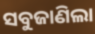
ସବୁଜାଣିଲା